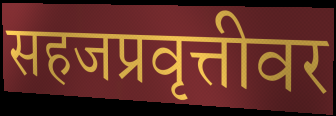
सहजप्रवृत्तीवर